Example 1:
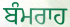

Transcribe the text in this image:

ਬੰਮਰਾਹ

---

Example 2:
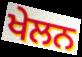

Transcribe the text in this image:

ਖੇਲਨ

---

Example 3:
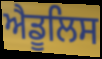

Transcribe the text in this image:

ਐਡੂਲਿਸ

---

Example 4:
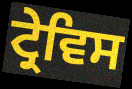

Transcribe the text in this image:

ਟ੍ਰੇਵਿਸ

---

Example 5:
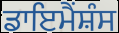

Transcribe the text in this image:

ਡਾਇਮੈਂਸ਼ੰਸ